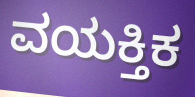
ವಯಕ್ತಿಕ